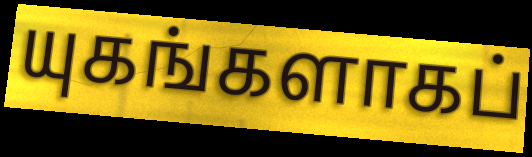
யுகங்களாகப்